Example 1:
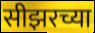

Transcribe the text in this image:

सीझरच्या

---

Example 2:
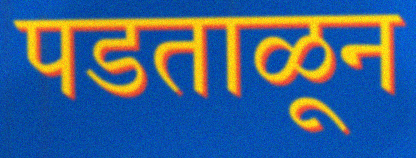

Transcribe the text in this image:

पडताळून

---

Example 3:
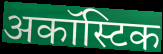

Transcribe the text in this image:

अकॉस्टिक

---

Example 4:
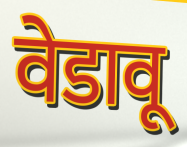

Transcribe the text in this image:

वेडावू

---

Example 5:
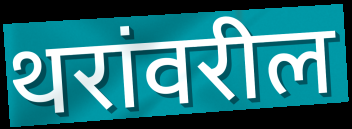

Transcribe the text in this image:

थरांवरील